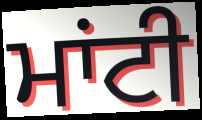
ਮਾਂਟੀ